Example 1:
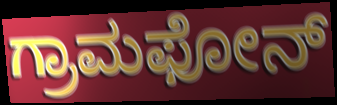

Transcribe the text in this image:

ಗ್ರಾಮಫೋನ್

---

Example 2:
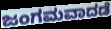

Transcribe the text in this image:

ಜಂಗಮವಾದಡೆ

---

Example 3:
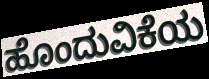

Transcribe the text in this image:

ಹೊಂದುವಿಕೆಯ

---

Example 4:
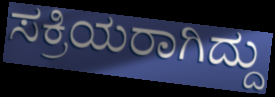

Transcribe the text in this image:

ಸಕ್ರಿಯರಾಗಿದ್ದು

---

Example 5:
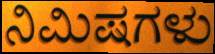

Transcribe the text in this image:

ನಿಮಿಷಗಳು